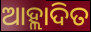
ଆହ୍ଲାଦିତ